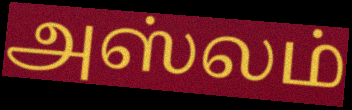
அஸ்லம்